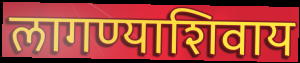
लागण्याशिवाय